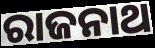
ରାଜନାଥ